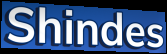
Shindes